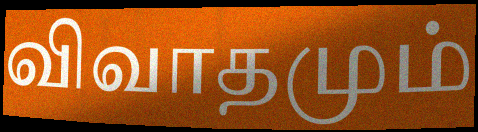
விவாதமும்